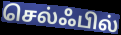
செல்ஃபில்